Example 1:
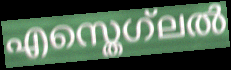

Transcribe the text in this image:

എസ്തെഗ്‌ലൽ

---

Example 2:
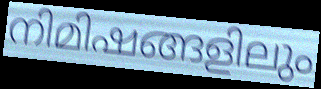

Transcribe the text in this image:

നിമിഷങ്ങളിലും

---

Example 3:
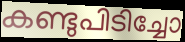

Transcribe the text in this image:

കണ്ടുപിടിച്ചോ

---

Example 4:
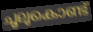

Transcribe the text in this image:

ചൂലുകൊണ്ട്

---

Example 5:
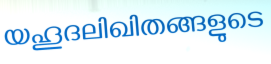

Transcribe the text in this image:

യഹൂദലിഖിതങ്ങളുടെ